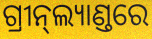
ଗ୍ରୀନ୍‍ଲ୍ୟାଣ୍ଡରେ